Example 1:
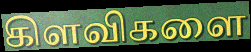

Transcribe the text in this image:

கிளவிகளை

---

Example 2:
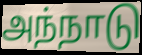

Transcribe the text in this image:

அந்நாடு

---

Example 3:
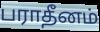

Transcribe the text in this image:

பராதீனம்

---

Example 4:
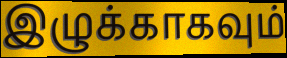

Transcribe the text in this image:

இழுக்காகவும்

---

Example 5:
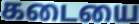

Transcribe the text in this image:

கடையை